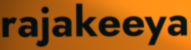
rajakeeya